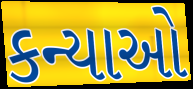
કન્યાઓ